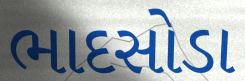
ભાદસોડા